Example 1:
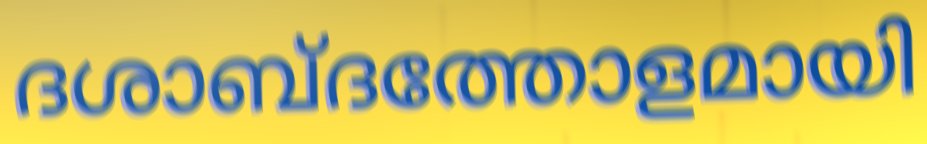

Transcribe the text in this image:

ദശാബ്ദത്തോളമായി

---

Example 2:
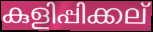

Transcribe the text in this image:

കുളിപ്പിക്കല്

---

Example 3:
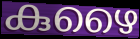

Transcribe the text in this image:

കുഴൈ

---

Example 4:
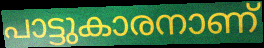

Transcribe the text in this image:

പാട്ടുകാരനാണ്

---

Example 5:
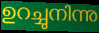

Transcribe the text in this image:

ഉറച്ചുനിന്നു